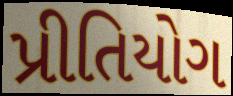
પ્રીતિયોગ